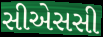
સીએસસી